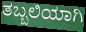
ತಬ್ಬಲಿಯಾಗಿ